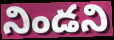
నిండని